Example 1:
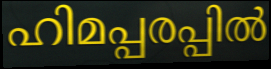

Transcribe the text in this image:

ഹിമപ്പരപ്പിൽ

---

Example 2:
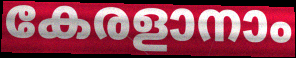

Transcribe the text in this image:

കേരളാനാം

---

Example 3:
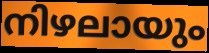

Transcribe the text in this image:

നിഴലായും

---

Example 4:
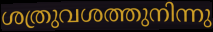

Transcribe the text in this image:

ശത്രുവശത്തുനിന്നു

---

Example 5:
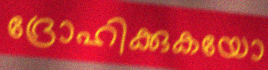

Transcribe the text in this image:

ദ്രോഹിക്കുകയോ